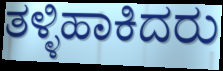
ತಳ್ಳಿಹಾಕಿದರು